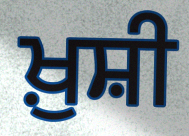
ਖ਼ੁਸ਼ੀ